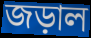
জড়াল